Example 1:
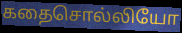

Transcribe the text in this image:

கதைசொல்லியோ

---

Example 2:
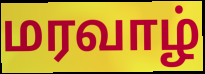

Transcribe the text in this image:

மரவாழ்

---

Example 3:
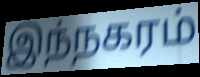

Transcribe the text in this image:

இந்நகரம்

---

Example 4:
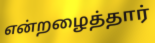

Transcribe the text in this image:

என்றழைத்தார்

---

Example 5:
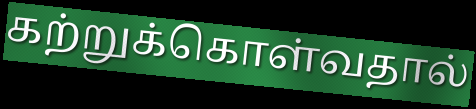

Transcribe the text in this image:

கற்றுக்கொள்வதால்